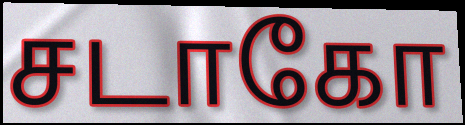
சடாகோ